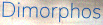
Dimorphos